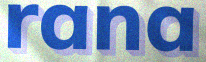
rana